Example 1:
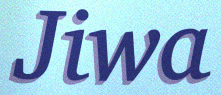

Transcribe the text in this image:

Jiwa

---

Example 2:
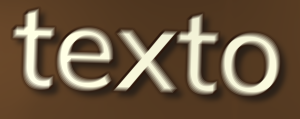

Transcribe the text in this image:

texto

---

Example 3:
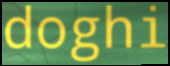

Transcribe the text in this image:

doghi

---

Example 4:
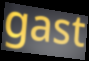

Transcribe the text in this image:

gast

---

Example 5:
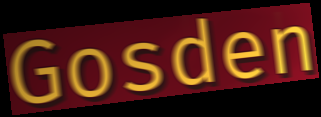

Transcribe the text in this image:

Gosden